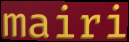
mairi